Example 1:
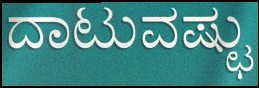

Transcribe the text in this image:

ದಾಟುವಷ್ಟು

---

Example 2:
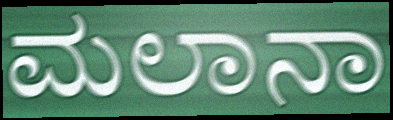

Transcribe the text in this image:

ಮಲಾನಾ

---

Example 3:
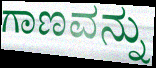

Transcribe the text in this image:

ಗಾಣವನ್ನು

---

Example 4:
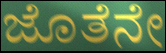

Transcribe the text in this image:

ಜೊತೆನೇ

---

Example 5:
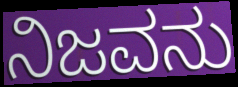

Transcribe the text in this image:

ನಿಜವನು